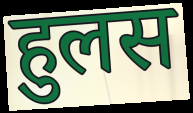
हुलस